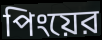
পিংয়ের